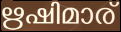
ഋഷിമാര്